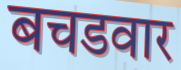
बचडवार